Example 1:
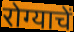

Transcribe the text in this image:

रोग्याचें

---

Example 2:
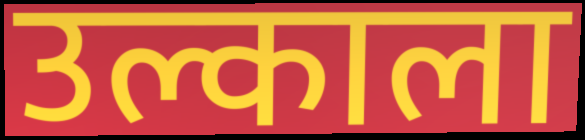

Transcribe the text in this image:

उल्काला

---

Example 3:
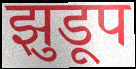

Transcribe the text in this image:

झुडूप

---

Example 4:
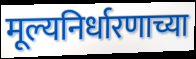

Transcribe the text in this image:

मूल्यनिर्धारणाच्या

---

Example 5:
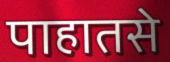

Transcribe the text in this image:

पाहातसे